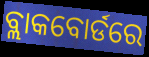
ବ୍ଲାକବୋର୍ଡରେ